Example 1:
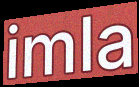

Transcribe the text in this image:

imla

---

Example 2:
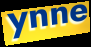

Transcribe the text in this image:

ynne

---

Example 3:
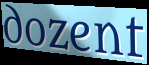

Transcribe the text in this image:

dozent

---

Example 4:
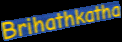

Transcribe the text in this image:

Brihathkatha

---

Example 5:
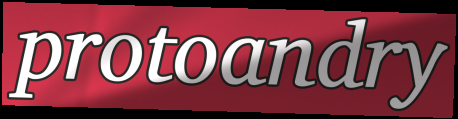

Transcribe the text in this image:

protoandry